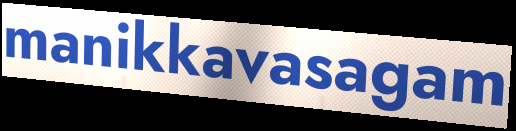
manikkavasagam